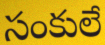
సంకులే